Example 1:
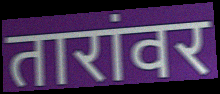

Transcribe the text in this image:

तारांवर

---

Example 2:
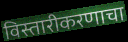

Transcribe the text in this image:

विस्तारीकरणाचा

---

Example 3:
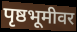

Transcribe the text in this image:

पृष्ठभूमीवर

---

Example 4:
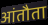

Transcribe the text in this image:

आंतौता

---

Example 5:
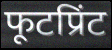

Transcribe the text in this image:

फूटप्रिंट